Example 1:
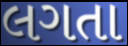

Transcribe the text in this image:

લગતા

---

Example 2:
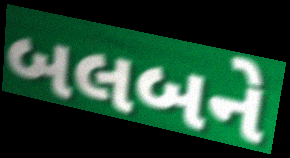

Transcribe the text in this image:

બલબને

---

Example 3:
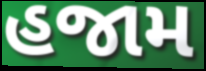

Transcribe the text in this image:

હજામ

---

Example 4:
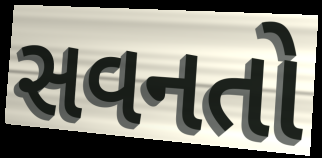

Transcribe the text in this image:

સવનતો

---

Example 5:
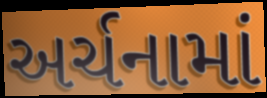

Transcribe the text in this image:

અર્ચનામાં